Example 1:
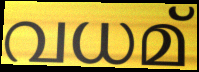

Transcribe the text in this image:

വധമ്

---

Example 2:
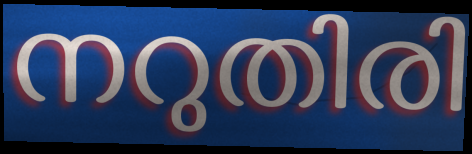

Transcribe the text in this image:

നറുതിരി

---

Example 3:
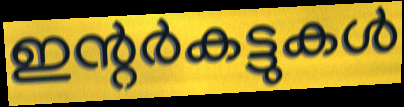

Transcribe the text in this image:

ഇന്റർകട്ടുകൾ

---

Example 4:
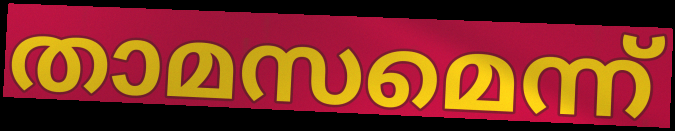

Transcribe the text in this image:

താമസമെന്ന്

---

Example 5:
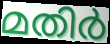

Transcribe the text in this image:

മതിർ